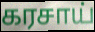
கரசாய்